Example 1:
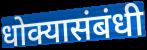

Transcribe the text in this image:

धोक्यासंबंधी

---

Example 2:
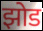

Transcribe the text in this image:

झोड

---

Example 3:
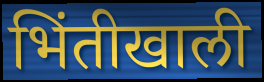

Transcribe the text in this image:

भिंतीखाली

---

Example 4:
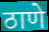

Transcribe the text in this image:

ठाणे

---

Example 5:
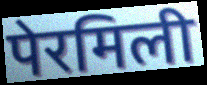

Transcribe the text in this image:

पेरमिली